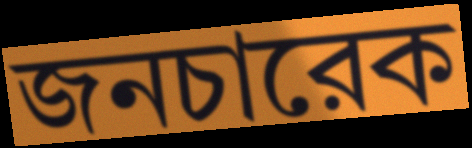
জনচারেক